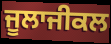
ਜੂਲਾਜੀਕਲ